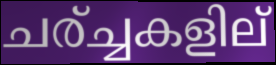
ചര്ച്ചകളില്